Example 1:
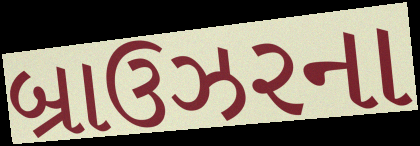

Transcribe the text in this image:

બ્રાઉઝરના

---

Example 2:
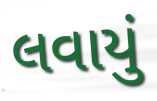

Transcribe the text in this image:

લવાયું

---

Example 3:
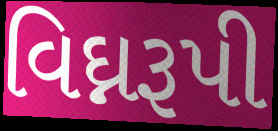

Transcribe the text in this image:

વિઘ્નરૂપી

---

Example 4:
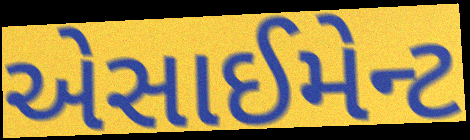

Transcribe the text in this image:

એસાઈમેન્ટ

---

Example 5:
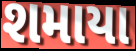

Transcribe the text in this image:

શમાયા